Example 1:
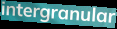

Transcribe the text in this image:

intergranular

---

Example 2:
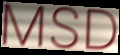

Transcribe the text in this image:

MSD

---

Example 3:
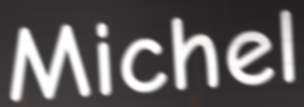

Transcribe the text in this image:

Michel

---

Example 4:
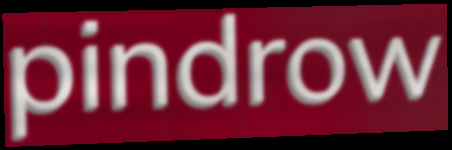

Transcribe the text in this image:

pindrow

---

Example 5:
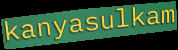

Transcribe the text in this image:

kanyasulkam